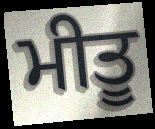
ਮੀਤੂ